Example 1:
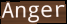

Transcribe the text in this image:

Anger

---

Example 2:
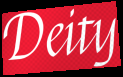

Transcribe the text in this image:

Deity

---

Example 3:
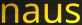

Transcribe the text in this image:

naus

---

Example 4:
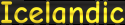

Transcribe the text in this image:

Icelandic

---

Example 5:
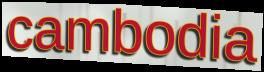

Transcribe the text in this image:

cambodia